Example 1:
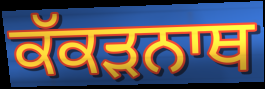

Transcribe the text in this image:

ਕੱਕੜਨਾਥ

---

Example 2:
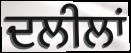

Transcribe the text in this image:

ਦਲੀਲਾਂ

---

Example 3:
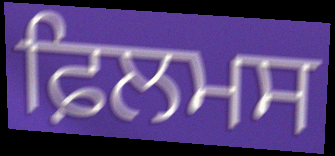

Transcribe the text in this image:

ਫ਼ਿਲਮਸ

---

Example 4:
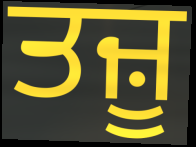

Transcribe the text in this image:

ਤਜ਼ੂ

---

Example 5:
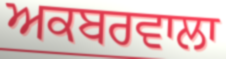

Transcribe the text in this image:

ਅਕਬਰਵਾਲਾ